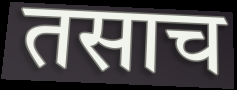
तसाच